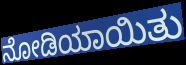
ನೋಡಿಯಾಯಿತು